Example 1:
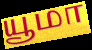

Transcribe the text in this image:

யூமா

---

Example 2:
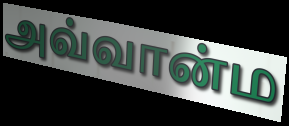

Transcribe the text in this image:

அவ்வான்ம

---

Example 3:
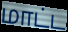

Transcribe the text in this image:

மாட்ட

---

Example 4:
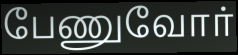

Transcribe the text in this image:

பேணுவோர்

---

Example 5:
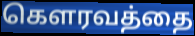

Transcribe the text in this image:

கௌரவத்தை